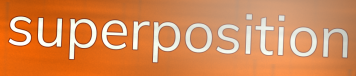
superposition